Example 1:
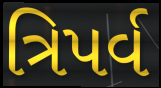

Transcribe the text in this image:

ત્રિપર્વ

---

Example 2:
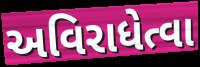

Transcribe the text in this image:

અવિરાધેત્વા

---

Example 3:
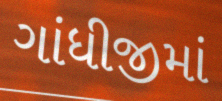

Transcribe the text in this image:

ગાંધીજીમાં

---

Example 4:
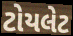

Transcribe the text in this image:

ટોયલેટ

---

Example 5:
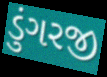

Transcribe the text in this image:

ડુંગરજી